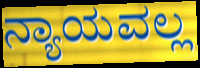
ನ್ಯಾಯವಲ್ಲ